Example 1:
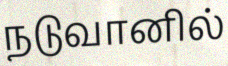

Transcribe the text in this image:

நடுவானில்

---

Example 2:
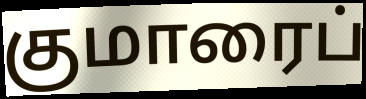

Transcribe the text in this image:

குமாரைப்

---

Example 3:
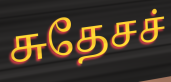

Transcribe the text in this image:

சுதேசச்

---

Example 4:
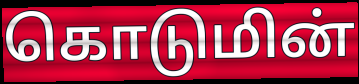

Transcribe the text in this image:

கொடுமின்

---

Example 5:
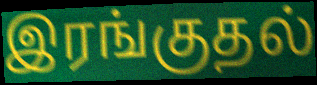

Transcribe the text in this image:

இரங்குதல்